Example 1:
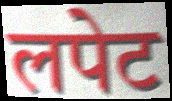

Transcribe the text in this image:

लपेट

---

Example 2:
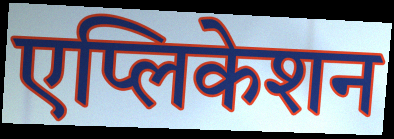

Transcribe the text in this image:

एप्लिकेशन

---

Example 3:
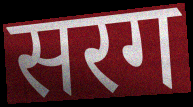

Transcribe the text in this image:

सरग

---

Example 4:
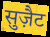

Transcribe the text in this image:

सुज़ैट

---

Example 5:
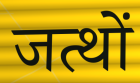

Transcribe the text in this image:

जत्थों